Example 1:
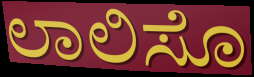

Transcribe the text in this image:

ಲಾಲಿಸೊ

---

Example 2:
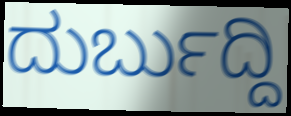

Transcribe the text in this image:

ದುರ್ಬುದ್ದಿ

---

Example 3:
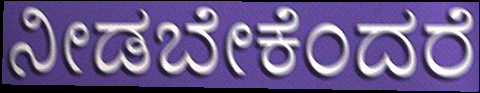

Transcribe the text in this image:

ನೀಡಬೇಕೆಂದರೆ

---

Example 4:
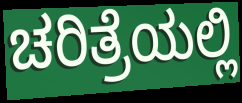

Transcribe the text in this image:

ಚರಿತ್ರೆಯಲ್ಲಿ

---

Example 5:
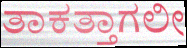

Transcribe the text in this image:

ತಾಕತ್ತಾಗಲೀ